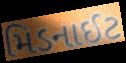
મિડનાઈટ